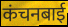
कंचनबाई